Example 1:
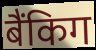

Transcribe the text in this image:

बैंकिग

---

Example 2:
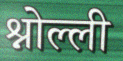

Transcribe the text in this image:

श्नोल्ली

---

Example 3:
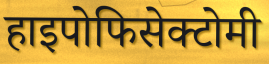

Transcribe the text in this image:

हाइपोफिसेक्टोमी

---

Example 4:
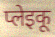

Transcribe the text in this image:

प्लेइकू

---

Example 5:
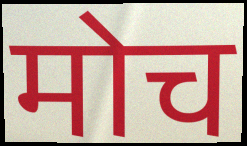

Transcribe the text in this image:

मोच